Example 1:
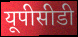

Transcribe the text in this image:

यूपीसीडी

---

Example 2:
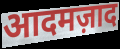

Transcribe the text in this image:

आदमज़ाद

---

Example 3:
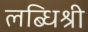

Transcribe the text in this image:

लब्धिश्री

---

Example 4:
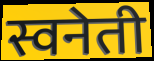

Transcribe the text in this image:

स्वनेती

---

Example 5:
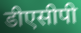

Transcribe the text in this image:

डीएसीपी